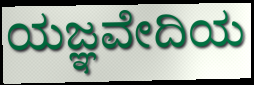
ಯಜ್ಞವೇದಿಯ